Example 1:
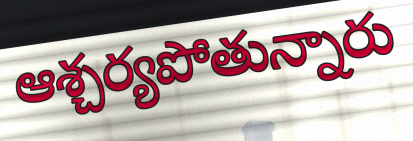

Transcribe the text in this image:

ఆశ్చర్యపోతున్నారు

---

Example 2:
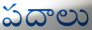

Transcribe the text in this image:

పదాలు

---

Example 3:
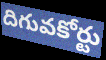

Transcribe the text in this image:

దిగువకోర్టు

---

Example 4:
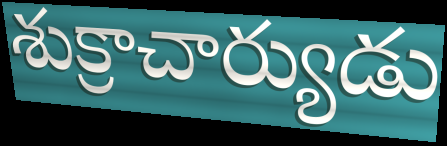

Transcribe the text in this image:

శుక్రాచార్యుడు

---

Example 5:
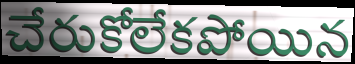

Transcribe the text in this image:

చేరుకోలేకపోయిన